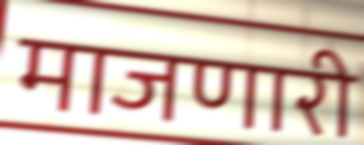
माजणारी